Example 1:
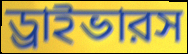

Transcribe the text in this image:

ড্রাইভারস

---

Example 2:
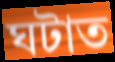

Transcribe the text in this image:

ঘটাত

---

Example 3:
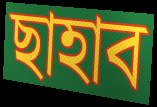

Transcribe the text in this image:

ছাহাব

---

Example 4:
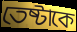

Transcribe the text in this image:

তেষ্টাকে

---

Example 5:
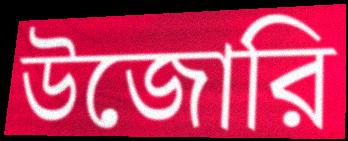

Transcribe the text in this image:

উজোরি